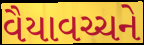
વૈયાવચ્ચને